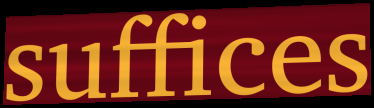
suffices